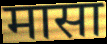
मासा